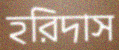
হরিদাস